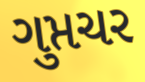
ગુપ્તચર